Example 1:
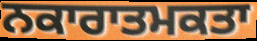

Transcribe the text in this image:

ਨਕਾਰਾਤਮਕਤਾ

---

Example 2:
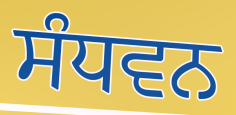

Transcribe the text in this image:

ਸੰਧਵਨ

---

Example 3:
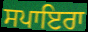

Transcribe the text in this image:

ਸਪਾਇਰਾ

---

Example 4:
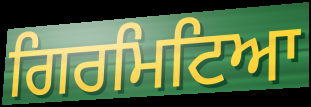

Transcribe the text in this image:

ਗਿਰਮਿਟਿਆ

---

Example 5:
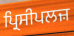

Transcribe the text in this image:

ਪ੍ਰਿਸੀਪਲਜ਼